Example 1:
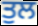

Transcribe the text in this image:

ਤੁਲ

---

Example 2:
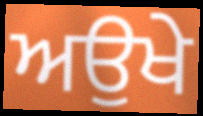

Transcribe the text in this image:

ਅਉਖੇ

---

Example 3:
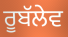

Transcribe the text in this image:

ਰੂਬੱਲੇਵ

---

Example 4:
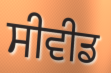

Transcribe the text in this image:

ਸੀਵੀਡ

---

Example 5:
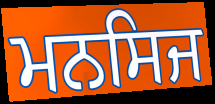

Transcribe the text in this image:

ਮਨਸਿਜ